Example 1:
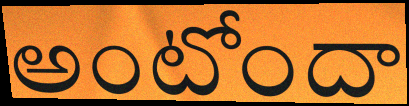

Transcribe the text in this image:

అంటోందా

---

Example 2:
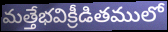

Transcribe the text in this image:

మత్తేభవిక్రీడితములో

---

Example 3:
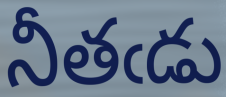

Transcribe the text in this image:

నీతఁడు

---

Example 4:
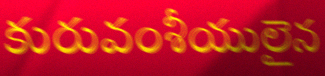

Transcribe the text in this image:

కురువంశీయులైన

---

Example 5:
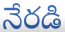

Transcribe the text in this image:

నేరడి